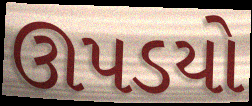
ઊપડયો